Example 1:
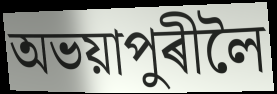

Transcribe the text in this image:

অভয়াপুৰীলৈ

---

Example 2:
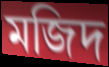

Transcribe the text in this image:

মজিদ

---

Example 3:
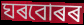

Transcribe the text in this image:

ঘৰবোৰৰ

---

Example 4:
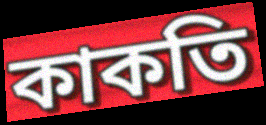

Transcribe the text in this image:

কাকতি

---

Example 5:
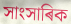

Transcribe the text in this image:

সাংসাৰিক